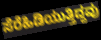
ಸೆರೆಹಿಡಿಯುತ್ತಿದ್ದವು